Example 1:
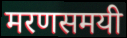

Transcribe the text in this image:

मरणसमयी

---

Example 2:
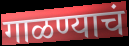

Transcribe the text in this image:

गाळण्याचं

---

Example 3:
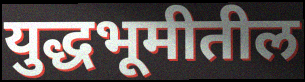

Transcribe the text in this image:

युद्धभूमीतील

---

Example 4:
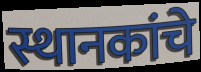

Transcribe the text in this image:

स्थानकांचे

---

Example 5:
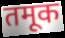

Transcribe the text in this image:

तमूक